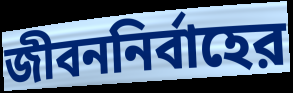
জীবননির্বাহের